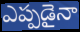
ఎప్పడైనా